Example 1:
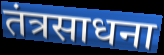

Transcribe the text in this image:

तंत्रसाधना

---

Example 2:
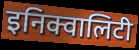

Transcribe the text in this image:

इनिक्वालिटी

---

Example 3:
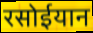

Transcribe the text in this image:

रसोईयान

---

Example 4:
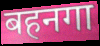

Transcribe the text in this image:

बहनगा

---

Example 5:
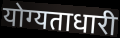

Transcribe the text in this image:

योग्यताधारी